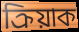
ক্ৰিয়াক